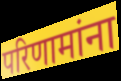
परिणामांना